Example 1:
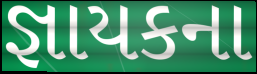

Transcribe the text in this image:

જ્ઞાયકના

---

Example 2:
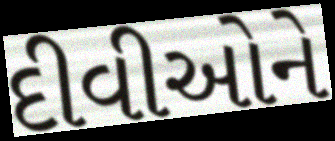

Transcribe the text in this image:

દીવીઓને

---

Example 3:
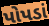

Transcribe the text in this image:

પોપડાં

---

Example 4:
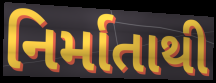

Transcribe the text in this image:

નિર્માતાથી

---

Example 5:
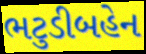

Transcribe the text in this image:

ભટુડીબહેન